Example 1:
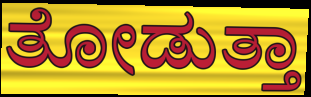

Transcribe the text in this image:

ತೋಡುತ್ತಾ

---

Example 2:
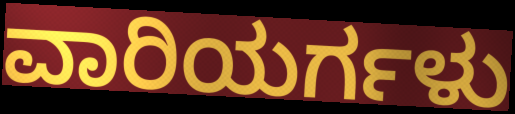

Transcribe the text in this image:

ವಾರಿಯರ್ಗಳು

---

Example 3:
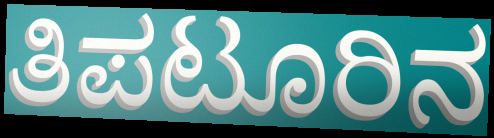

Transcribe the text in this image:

ತಿಪಟೂರಿನ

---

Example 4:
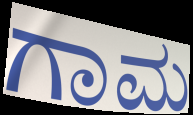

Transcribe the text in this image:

ಗಾಮ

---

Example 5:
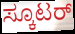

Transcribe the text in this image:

ಸ್ಕೂಟರ್